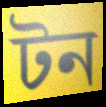
টন